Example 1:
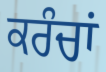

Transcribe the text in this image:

ਕਰੰਚਾਂ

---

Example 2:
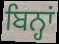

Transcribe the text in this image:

ਬਿਨ੍ਹਾਂ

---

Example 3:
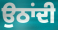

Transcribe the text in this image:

ਉਠਾਂਦੀ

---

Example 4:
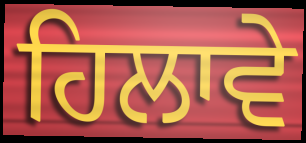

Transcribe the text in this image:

ਹਿਲਾਵੇ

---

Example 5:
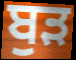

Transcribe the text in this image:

ਬੁੜ